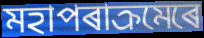
মহাপৰাক্ৰমেৰে